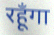
रहूँगा